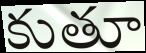
కుతూ